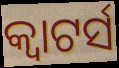
କ୍ଵାଟର୍ସ